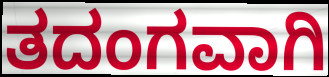
ತದಂಗವಾಗಿ